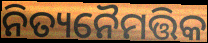
ନିତ୍ୟନୈମତ୍ତିକ